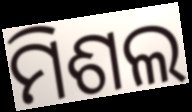
ମିଶଲ